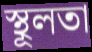
স্থূলতা